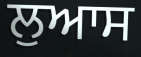
ਲੁਆਸ